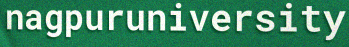
nagpuruniversity